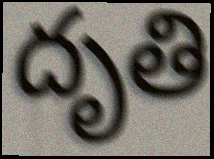
దృతి